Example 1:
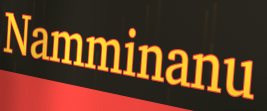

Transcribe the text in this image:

Namminanu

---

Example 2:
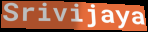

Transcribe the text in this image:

Srivijaya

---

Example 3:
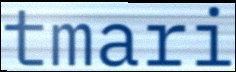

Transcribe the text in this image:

tmari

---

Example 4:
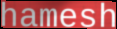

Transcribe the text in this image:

hamesh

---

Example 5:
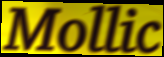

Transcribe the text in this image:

Mollic